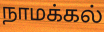
நாமக்கல்